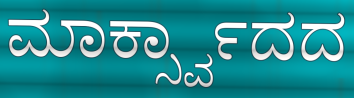
ಮಾರ್ಕ್ಸ್ವಾದದ